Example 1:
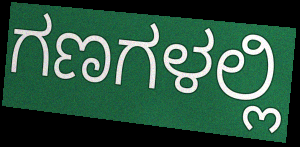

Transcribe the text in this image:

ಗಣಗಳಲ್ಲಿ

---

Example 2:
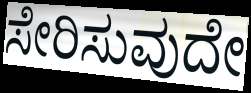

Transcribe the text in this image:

ಸೇರಿಸುವುದೇ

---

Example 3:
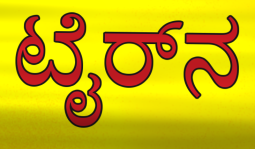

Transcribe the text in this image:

ಟೈರ್‌ನ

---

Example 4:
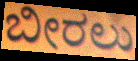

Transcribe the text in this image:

ಬೀರಲು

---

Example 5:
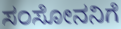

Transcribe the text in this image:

ಸಂಸೋನನಿಗೆ